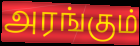
அரங்கும்